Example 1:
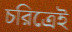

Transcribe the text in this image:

চরিত্রেই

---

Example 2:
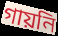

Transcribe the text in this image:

গায়নি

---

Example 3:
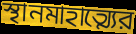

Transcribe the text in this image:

স্থানমাহাত্ম্যের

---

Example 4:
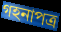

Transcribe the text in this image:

গহনাপত্র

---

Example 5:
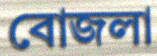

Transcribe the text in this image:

বোজলা